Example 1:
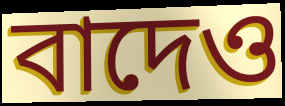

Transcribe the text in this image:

বাদেও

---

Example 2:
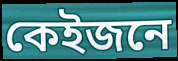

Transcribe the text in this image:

কেইজনে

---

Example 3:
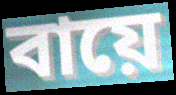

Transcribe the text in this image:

বায়ে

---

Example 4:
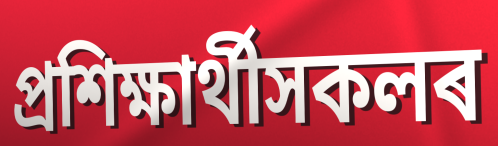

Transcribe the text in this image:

প্ৰশিক্ষাৰ্থীসকলৰ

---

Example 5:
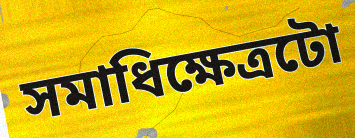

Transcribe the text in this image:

সমাধিক্ষেত্ৰটো